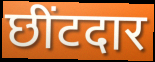
छींटदार